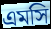
এমসি